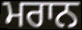
ਮਰਾਨ